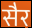
सैर